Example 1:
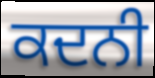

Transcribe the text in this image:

ਕਦਨੀ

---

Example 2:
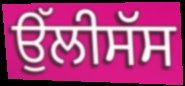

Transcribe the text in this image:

ਉੱਲੀਸੱਸ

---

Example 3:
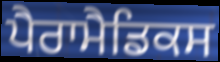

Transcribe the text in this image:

ਪੈਰਾਮੈਡਿਕਸ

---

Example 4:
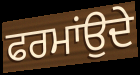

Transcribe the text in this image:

ਫਰਮਾਂਉਦੇ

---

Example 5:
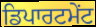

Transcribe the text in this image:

ਡਿਪਾਰਟਮੇਂਟ